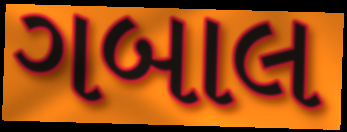
ગબાલ